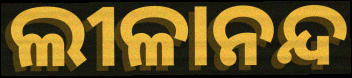
ଲୀଳାନନ୍ଦ